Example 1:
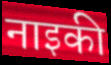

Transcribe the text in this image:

नाइकी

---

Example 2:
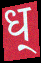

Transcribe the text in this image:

ध्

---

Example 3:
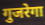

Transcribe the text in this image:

गुजरेगा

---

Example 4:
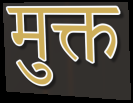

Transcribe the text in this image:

मुक्त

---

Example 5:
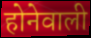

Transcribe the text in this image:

होनेवाली